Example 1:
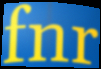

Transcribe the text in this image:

fnr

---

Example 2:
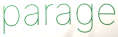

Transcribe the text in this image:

parage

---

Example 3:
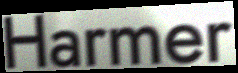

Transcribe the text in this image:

Harmer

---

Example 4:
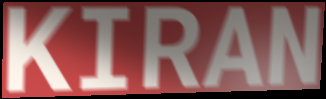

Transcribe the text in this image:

KIRAN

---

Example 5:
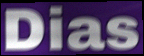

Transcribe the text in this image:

Dias